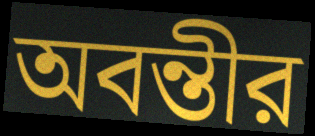
অবন্তীর